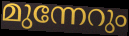
മുന്നേറും